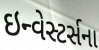
ઇન્વેસ્ટર્સના